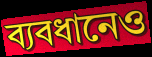
ব্যবধানেও